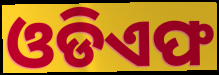
ଓଡିଏଫ